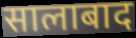
सालाबाद